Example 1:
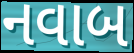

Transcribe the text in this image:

નવાબ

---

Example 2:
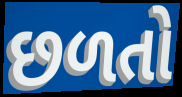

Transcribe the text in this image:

છળતો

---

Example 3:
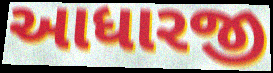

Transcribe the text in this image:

આધારજી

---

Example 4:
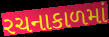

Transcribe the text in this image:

રચનાકાળમાં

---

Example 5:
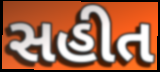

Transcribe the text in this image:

સહીત